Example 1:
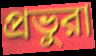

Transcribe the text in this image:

প্রভুরা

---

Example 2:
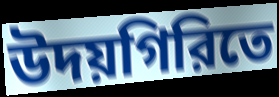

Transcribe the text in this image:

উদয়গিরিতে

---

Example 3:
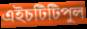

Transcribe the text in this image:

এইচটিটিপুল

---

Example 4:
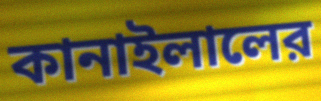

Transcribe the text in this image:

কানাইলালের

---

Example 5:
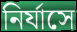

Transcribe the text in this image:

নির্যাসে